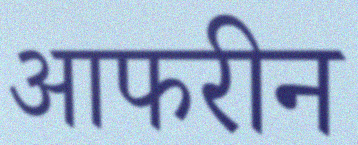
आफरीन